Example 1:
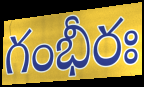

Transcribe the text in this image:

గంభీరః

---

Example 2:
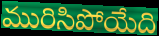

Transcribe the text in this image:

మురిసిపోయేది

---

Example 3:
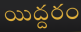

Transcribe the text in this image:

యిద్దరం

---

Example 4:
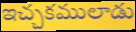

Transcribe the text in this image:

ఇచ్చకములాడు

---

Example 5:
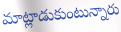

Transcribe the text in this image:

మాట్లాడుకుంటున్నారు